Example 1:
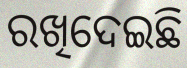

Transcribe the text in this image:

ରଖିଦେଇଛି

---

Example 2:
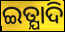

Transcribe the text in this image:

ଇତ୍ଯାଦି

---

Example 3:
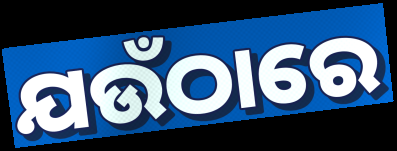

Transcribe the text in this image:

ଯଉଁଠାରେ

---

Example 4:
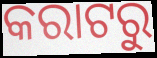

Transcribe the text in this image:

କରାଟରୁ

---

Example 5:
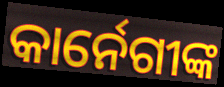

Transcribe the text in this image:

କାର୍ନେଗୀଙ୍କ